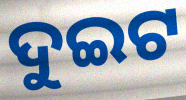
ଦୁଇଟ